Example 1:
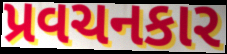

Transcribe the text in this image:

પ્રવચનકાર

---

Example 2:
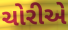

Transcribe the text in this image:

ચોરીએ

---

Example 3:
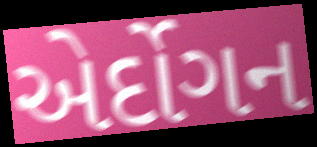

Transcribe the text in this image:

એર્દોગન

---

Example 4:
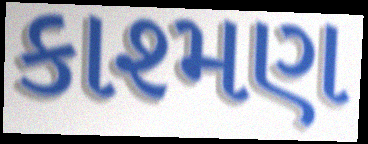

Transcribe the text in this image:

કાશ્મણ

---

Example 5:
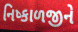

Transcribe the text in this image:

નિષ્કાળજીને